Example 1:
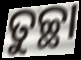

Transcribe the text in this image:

ତୁଚ୍ଛା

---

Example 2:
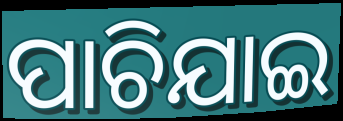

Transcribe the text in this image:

ପାଚିଯାଇ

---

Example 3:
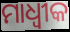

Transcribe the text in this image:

ମାଧ୍ୱୀକ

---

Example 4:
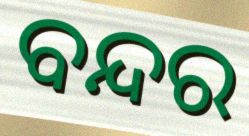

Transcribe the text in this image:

ବନ୍ଦର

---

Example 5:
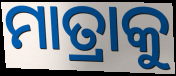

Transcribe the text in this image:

ମାତ୍ରାକୁ